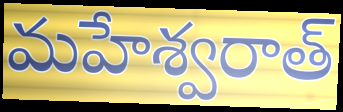
మహేశ్వరాత్